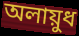
অলায়ুধ